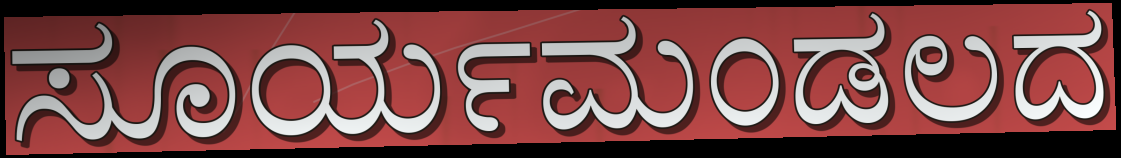
ಸೂರ್ಯಮಂಡಲದ